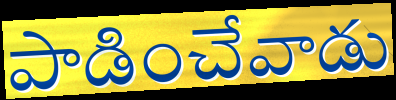
పాడించేవాడు